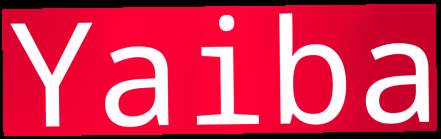
Yaiba